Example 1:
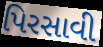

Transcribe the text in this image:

પિરસાવી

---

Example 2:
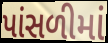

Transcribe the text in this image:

પાંસળીમાં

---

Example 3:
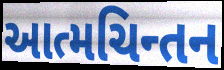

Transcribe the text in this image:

આત્મચિન્તન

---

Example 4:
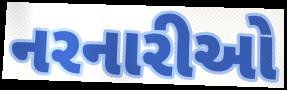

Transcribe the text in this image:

નરનારીઓ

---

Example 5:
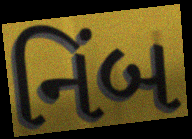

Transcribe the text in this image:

નિંબ